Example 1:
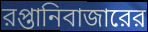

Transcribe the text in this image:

রপ্তানিবাজারের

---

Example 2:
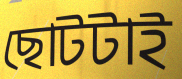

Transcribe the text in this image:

ছোটটাই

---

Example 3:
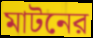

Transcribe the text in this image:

মাটনের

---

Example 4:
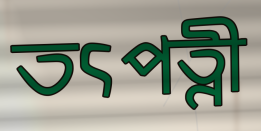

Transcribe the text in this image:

তৎপত্নী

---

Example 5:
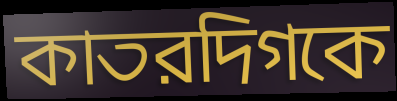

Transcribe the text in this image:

কাতরদিগকে